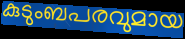
കുടുംബപരവുമായ